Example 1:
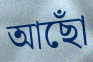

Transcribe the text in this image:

আছোঁ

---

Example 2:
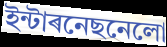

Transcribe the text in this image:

ইন্টাৰনেছনেলো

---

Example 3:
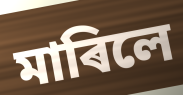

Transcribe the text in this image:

মাৰিলে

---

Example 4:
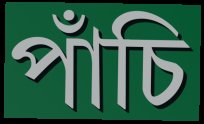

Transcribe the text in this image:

পাঁচি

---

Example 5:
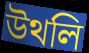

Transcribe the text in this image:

উথলি